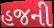
હજની